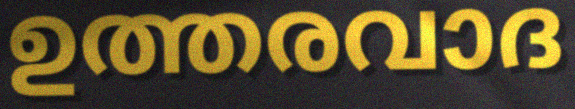
ഉത്തരവാദ